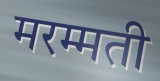
मरम्मती